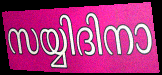
സയ്യിദിനാ